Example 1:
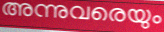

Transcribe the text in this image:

അന്നുവരെയും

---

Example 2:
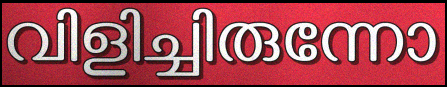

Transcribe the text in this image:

വിളിച്ചിരുന്നോ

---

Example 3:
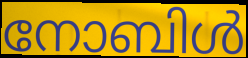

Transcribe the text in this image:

നോബിൾ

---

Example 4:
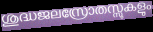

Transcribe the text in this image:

ശുദ്ധജലസ്രോതസ്സുകളും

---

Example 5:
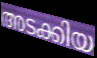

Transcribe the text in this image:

അടക്കിയ